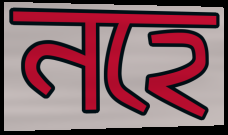
নহে